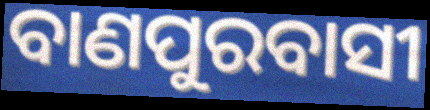
ବାଣପୁରବାସୀ